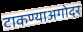
टाकण्याअगोदर